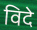
विदे